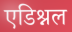
एडिश्नल